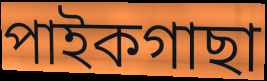
পাইকগাছা